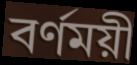
বর্ণময়ী